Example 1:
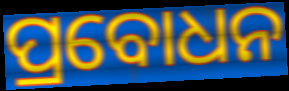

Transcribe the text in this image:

ପ୍ରବୋଧନ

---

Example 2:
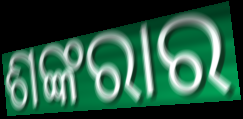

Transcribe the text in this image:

ଶଙ୍କରାର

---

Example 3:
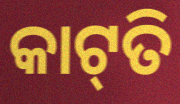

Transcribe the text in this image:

କାଟ୍‍ତି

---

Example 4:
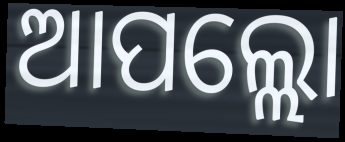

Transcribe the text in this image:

ଆପଲ୍ଲୋ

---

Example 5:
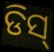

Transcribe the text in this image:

ଡିସ୍